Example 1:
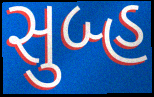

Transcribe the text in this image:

સુબ્હ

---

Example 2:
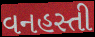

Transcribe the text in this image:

વનહસ્તી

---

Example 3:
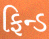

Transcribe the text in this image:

ફિન્ડ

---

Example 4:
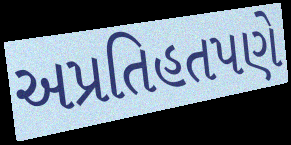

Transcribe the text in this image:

અપ્રતિહતપણે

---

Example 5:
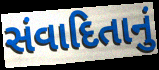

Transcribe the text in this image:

સંવાદિતાનું